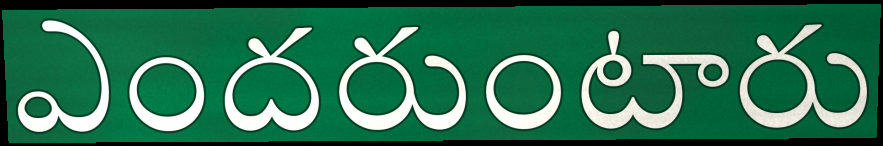
ఎందరుంటారు